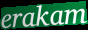
erakam